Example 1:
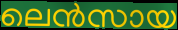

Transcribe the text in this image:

ലെൻസായ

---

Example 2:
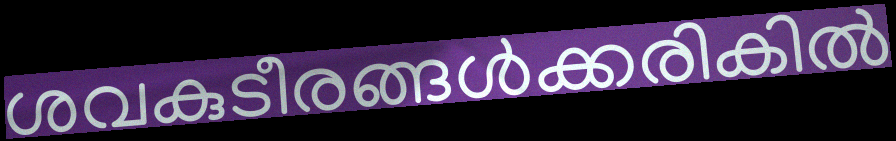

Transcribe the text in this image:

ശവകുടീരങ്ങൾക്കരികിൽ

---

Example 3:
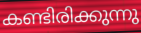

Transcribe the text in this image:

കണ്ടിരിക്കുന്നു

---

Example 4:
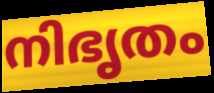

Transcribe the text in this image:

നിഭൃതം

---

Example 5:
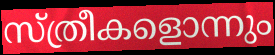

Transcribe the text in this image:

സ്ത്രീകളൊന്നും